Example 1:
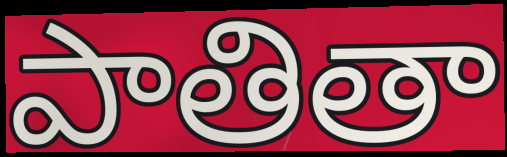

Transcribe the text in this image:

పాతితా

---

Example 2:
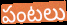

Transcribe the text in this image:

పంటలు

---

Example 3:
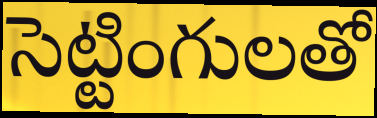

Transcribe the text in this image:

సెట్టింగులతో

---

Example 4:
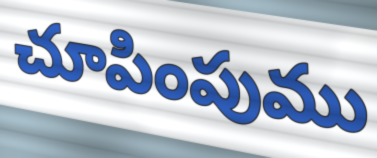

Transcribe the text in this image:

చూపింపుము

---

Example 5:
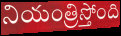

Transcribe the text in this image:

నియంత్రిస్తోంది